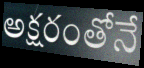
అక్షరంతోనే